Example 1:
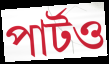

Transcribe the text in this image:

পার্টও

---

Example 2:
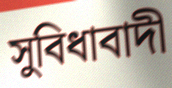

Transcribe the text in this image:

সুবিধাবাদী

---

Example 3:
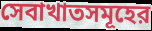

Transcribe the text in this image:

সেবাখাতসমূহের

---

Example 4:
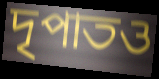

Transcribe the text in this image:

দৃপাতও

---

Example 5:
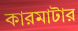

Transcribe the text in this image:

কারমাটার